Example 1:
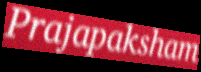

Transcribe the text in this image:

Prajapaksham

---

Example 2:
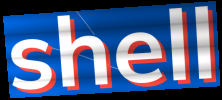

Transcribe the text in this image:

shell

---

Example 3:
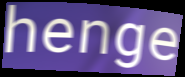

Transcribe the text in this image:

henge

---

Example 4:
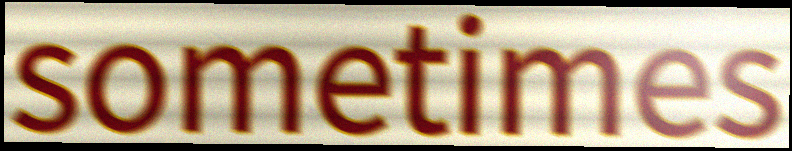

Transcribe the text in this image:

sometimes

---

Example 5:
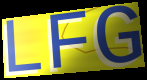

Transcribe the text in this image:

LFG